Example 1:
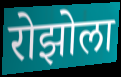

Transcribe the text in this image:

रोझोला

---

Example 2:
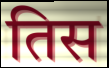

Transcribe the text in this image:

तिस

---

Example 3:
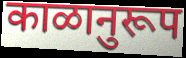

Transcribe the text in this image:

काळानुरूप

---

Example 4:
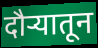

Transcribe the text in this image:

दौऱ्यातून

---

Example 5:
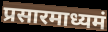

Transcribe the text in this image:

प्रसारमाध्यमं